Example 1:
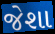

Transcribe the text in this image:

જેશા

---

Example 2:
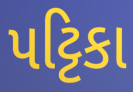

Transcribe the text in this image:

પટ્ટિકા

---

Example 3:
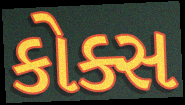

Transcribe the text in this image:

કોક્સ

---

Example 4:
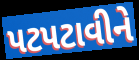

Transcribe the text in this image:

પટપટાવીને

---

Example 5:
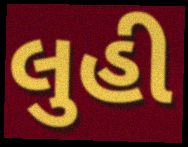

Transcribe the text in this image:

લુહી